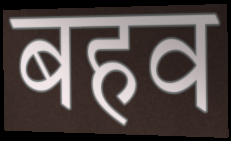
बहव